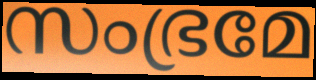
സംഭ്രമേ